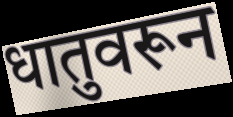
धातुवरून